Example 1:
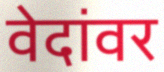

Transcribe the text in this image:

वेदांवर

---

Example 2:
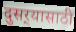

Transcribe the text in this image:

दुसर्यासाठी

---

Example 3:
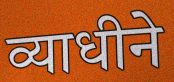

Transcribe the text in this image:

व्याधीने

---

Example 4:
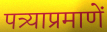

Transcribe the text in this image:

पत्र्याप्रमाणें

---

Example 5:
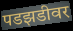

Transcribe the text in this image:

पडझडीवर